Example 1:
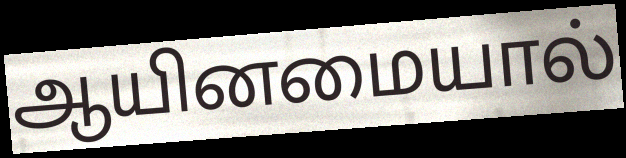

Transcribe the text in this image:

ஆயினமையால்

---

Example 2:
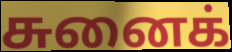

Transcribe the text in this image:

சுனைக்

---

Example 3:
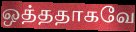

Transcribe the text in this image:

ஒத்ததாகவே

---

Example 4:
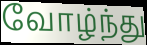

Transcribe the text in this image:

வோழ்ந்து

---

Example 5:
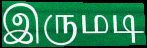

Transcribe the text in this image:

இருமடி